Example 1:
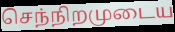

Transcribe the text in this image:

செந்நிறமுடைய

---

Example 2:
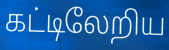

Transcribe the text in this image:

கட்டிலேறிய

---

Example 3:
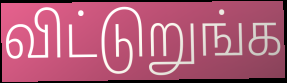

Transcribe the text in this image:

விட்டுறுங்க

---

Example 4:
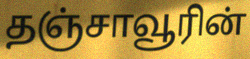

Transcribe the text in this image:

தஞ்சாவூரின்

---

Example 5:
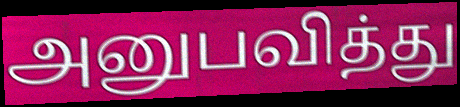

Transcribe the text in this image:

அனுபவித்து